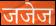
जजेज